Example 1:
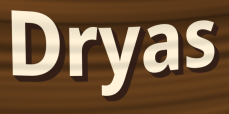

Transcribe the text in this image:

Dryas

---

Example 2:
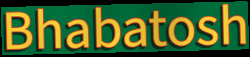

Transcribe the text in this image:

Bhabatosh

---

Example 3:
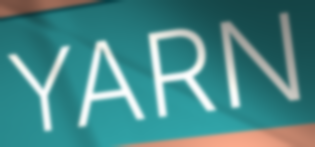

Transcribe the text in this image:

YARN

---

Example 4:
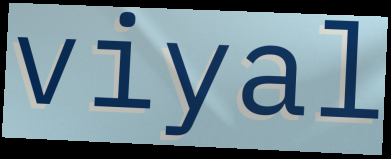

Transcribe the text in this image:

viyal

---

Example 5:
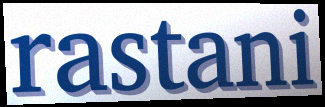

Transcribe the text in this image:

rastani